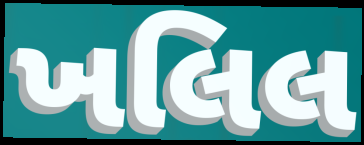
ખલિલ